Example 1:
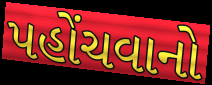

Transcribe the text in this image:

પહોંચવાનો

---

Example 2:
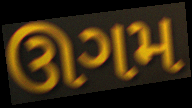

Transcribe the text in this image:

ઊગમ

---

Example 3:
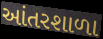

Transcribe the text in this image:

આંતરશાળા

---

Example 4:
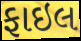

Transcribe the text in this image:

ફાઇલ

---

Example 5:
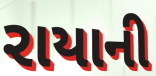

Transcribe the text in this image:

રાયાની